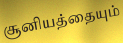
சூனியத்தையும்